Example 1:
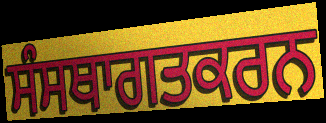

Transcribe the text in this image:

ਸੰਸਥਾਗਤਕਰਨ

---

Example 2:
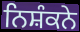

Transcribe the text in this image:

ਨਿਸ਼ੰਕਨੇ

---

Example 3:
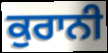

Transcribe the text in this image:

ਕੁਰਾਨੀ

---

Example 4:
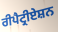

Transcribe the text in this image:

ਰੀਪੈਟ੍ਰੀਏਸ਼ਨ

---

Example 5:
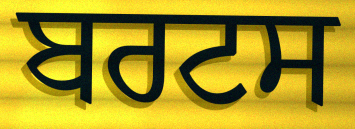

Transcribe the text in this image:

ਬਰਟਸ